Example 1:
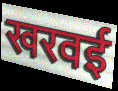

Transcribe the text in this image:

खरवई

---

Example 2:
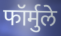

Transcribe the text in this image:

फॉर्मुले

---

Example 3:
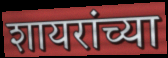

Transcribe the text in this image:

शायरांच्या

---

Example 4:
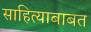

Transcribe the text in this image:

साहित्याबाबत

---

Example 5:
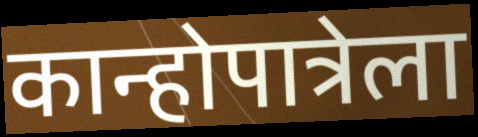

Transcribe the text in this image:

कान्होपात्रेला